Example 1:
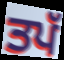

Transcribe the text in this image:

ਤਪੱ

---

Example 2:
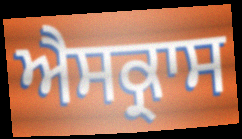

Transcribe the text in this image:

ਐਸਕ੍ਰਾਸ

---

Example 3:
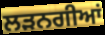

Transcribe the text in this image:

ਲੜਨਗੀਆਂ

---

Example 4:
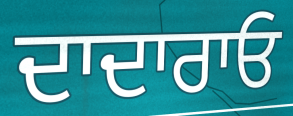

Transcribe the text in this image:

ਦਾਦਾਰਾਓ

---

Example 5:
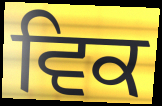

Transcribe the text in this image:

ਵਿਕ